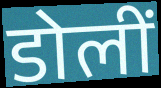
डोलीं